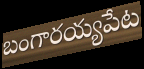
బంగారయ్యపేట